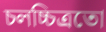
চলচ্চিত্ৰতো